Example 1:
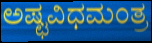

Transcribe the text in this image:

ಅಷ್ಟವಿಧಮಂತ್ರ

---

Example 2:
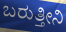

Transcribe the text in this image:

ಬರುತ್ತೀನಿ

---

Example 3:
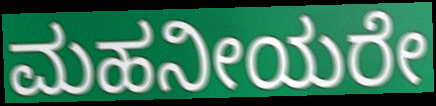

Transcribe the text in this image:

ಮಹನೀಯರೇ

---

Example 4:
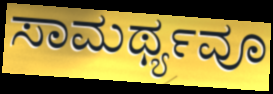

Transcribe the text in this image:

ಸಾಮರ್ಥ್ಯವೂ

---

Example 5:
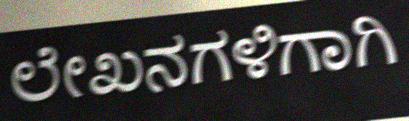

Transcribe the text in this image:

ಲೇಖನಗಳಿಗಾಗಿ